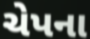
ચેપના